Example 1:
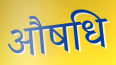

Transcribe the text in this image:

औषधि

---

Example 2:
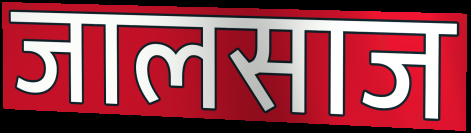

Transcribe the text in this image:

जालसाज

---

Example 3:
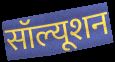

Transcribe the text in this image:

सॉल्यूशन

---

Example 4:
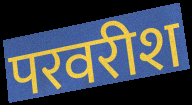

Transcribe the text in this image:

परवरीश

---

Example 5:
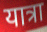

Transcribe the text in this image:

यात्रा